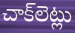
చాక్‌లెట్లు